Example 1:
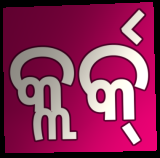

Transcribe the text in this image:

କ୍ଲର୍କ୍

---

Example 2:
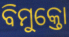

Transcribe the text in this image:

ବିମୁକ୍ତୋ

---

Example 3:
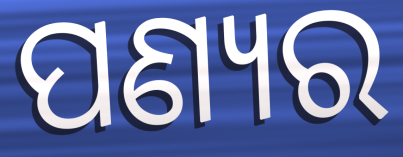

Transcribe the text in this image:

ପଣ୍ୟର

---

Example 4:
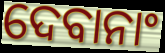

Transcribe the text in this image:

ଦେବାନାଂ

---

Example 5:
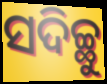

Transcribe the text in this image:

ସଦିଚ୍ଛୁ